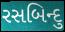
રસબિન્દુ